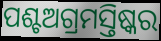
ପଶ୍ଚଅଗ୍ରମସ୍ତିଷ୍କର